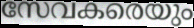
സേവകരെയും